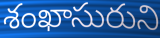
శంఖాసురుని